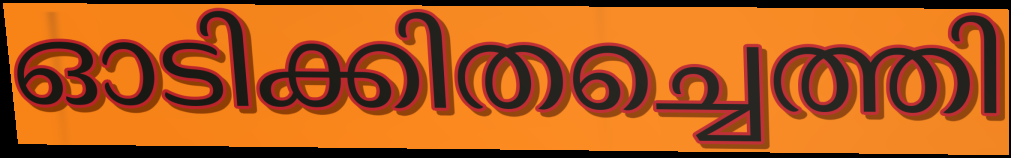
ഓടിക്കിതച്ചെത്തി